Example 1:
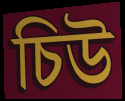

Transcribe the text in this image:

চিউ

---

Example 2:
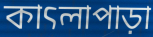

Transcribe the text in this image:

কাৎলাপাড়া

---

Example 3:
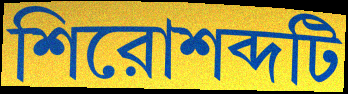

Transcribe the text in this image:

শিরোশব্দটি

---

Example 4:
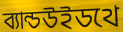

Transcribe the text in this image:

ব্যান্ডউইডথে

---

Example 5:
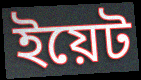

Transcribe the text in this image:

ইয়েট